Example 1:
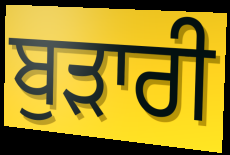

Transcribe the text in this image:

ਬੁੜਾਰੀ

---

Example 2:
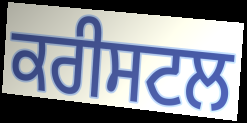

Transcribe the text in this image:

ਕਰੀਸਟਲ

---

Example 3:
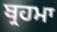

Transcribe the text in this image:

ਬ੍ਰਹਮਾ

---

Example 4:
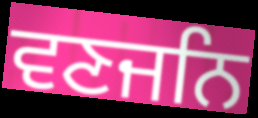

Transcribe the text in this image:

ਵਣਜਨਿ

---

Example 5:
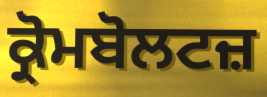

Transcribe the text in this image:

ਕ੍ਰੋਮਬੋਲਟਜ਼